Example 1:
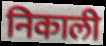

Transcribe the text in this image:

निकाली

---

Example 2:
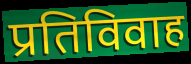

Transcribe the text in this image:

प्रतिविवाह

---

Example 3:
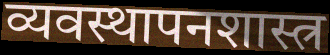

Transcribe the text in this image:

व्यवस्थापनशास्त्र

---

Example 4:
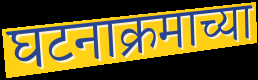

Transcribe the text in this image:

घटनाक्रमाच्या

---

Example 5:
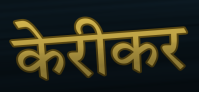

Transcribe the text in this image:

केरीकर